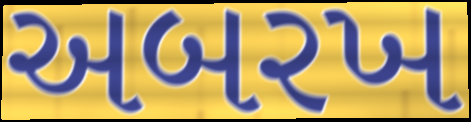
અબરખ